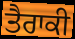
ਤੈਰਾਕੀ